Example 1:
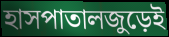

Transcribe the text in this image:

হাসপাতালজুড়েই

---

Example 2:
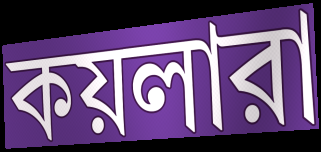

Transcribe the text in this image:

কয়লারা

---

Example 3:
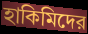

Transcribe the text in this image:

হাকিমিদের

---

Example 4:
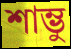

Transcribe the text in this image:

শাম্ভু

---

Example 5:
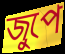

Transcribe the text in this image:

জুপে